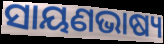
ସାୟଣଭାଷ୍ୟ